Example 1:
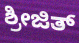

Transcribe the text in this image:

ಶ್ರೀಜಿತ್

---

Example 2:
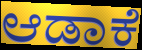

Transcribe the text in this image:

ಆಡಾಕೆ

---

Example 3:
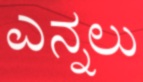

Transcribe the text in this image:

ಎನ್ನಲು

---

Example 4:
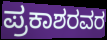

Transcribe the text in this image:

ಪ್ರಕಾಶರವರ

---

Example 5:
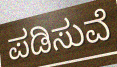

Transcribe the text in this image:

ಪಡಿಸುವೆ